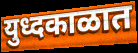
युध्दकाळात